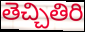
తెచ్చితిరి